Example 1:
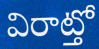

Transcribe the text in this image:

విరాట్తో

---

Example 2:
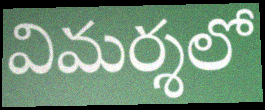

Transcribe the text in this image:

విమర్శలో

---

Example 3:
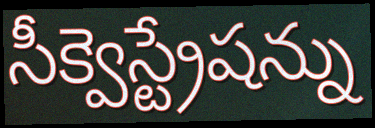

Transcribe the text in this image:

సీక్వెస్ట్రేషన్ను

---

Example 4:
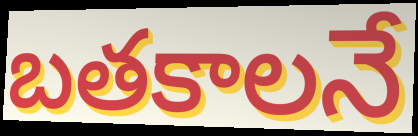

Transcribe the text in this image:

బతకాలనే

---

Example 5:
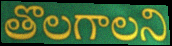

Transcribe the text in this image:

తొలగాలని